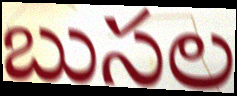
బుసల